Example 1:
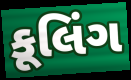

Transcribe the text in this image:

કૂલિંગ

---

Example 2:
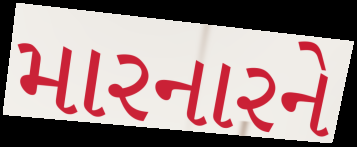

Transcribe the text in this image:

મારનારને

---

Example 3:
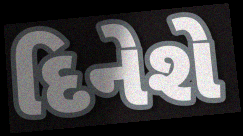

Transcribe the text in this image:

દિનેશે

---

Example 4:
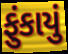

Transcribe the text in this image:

ફુંકાયું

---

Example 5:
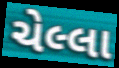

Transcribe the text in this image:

ચેલ્લા